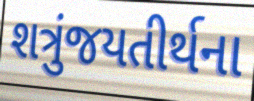
શત્રુંજયતીર્થના